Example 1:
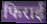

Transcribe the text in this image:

फिराई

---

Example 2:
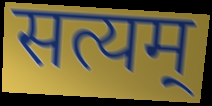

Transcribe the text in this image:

सत्यम्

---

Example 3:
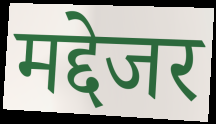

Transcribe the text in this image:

मद्देजर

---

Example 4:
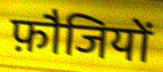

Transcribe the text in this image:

फ़ौजियों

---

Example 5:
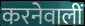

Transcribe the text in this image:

करनेवालीं